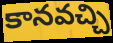
కానవచ్చి